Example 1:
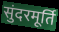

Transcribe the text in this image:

सुंदरमूर्ति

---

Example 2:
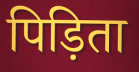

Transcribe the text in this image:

पिड़िता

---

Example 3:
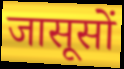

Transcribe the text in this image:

जासूसों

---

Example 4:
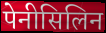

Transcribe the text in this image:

पेनीसिलिन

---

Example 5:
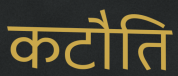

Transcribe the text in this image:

कटौति